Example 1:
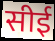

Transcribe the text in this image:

सीई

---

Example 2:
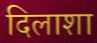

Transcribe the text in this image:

दिलाशा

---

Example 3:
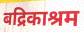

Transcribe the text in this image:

बद्रिकाश्रम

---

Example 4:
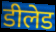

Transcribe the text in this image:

डीलेड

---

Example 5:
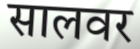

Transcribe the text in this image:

सालवर